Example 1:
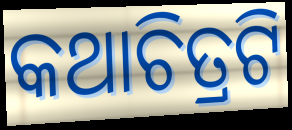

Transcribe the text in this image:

କଥାଚିତ୍ରଟି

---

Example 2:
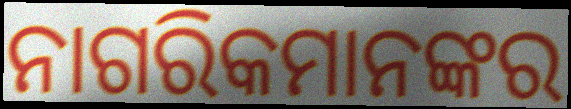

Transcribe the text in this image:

ନାଗରିକମାନଙ୍କର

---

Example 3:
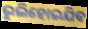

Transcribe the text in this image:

ଭୁଲିହୋଇଯିବ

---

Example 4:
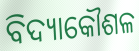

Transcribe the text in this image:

ବିଦ୍ୟାକୌଶଳ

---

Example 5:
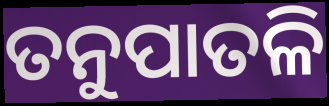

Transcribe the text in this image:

ତନୁପାତଳି